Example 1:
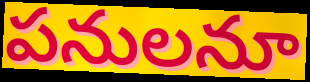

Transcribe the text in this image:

పనులనూ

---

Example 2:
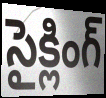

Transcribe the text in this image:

సైక్లింగ్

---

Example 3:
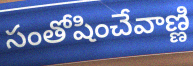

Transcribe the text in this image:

సంతోషించేవాణ్ణి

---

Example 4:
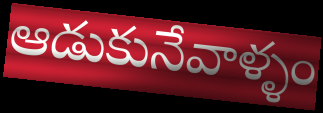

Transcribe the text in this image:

ఆడుకునేవాళ్ళం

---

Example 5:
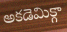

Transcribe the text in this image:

అకడెమిక్గా